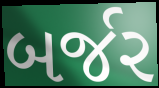
બર્જર